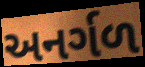
અનર્ગળ